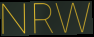
NRW